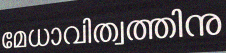
മേധാവിത്വത്തിനു